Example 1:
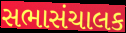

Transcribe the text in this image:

સભાસંચાલક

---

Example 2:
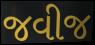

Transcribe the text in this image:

જવીજ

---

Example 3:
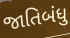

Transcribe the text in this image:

જાતિબંધુ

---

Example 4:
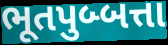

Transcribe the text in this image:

ભૂતપુબ્બત્તા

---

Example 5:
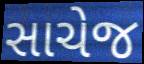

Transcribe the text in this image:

સાચેજ